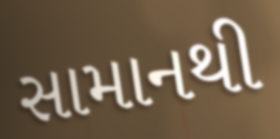
સામાનથી